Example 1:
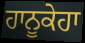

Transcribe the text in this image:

ਹਾਨੂਕੇਹਾ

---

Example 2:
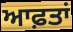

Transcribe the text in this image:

ਆਫ਼ਤਾਂ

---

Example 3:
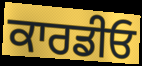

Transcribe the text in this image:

ਕਾਰਡੀਓ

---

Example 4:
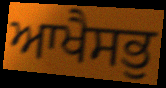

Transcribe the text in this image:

ਆਖੈਸਭੁ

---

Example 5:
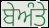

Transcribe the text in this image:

ਬੇਅੰਤੇ